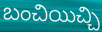
బంచియిచ్చి